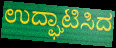
ಉದ್ಘಾಟಿಸಿದ